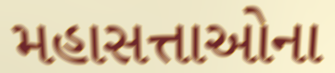
મહાસત્તાઓના